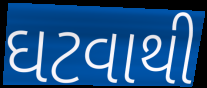
ઘટવાથી